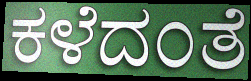
ಕಳೆದಂತೆ